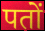
पतों